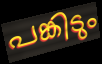
പങ്കിടും